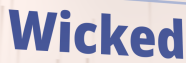
Wicked